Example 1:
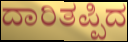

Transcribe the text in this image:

ದಾರಿತಪ್ಪಿದ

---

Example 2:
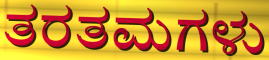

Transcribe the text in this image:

ತರತಮಗಳು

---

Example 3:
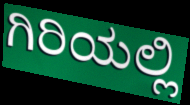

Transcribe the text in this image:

ಗಿರಿಯಲ್ಲಿ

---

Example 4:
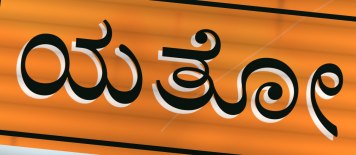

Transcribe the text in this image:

ಯತೋ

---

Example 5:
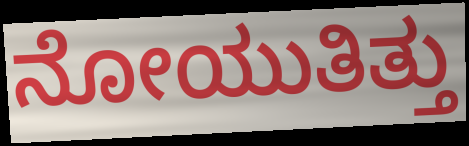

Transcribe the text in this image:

ನೋಯುತಿತ್ತು